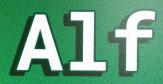
Alf